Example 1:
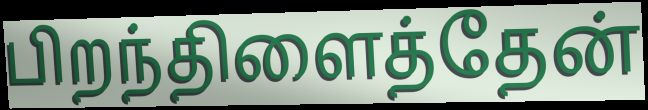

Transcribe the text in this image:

பிறந்திளைத்தேன்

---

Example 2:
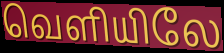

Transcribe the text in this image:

வெளியிலே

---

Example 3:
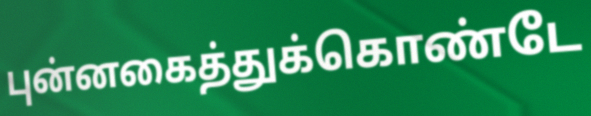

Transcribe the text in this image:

புன்னகைத்துக்கொண்டே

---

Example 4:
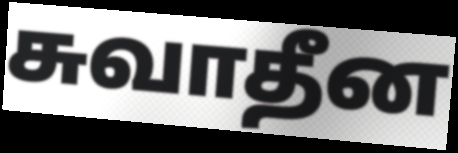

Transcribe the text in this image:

சுவாதீன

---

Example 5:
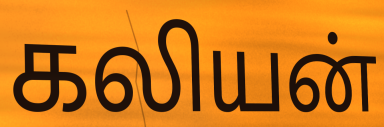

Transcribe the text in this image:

கலியன்